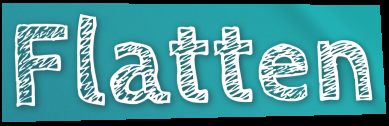
Flatten